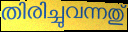
തിരിച്ചുവന്നതു്